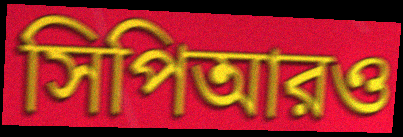
সিপিআরও